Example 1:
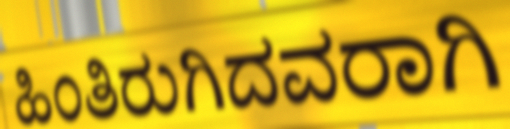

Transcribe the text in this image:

ಹಿಂತಿರುಗಿದವರಾಗಿ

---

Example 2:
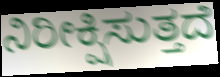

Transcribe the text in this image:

ನಿರೀಕ್ಷಿಸುತ್ತದೆ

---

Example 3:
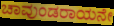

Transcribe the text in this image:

ಚಾವುಂಡರಾಯನೇ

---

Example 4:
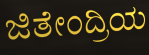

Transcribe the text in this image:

ಜಿತೇಂದ್ರಿಯ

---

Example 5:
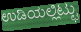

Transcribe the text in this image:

ಉಡಿಯಲ್ಲಿಟ್ಟು